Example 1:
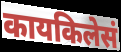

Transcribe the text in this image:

कायकिलेसं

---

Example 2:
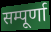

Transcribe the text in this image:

सम्पूर्णा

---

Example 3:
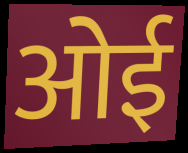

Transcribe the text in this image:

ओई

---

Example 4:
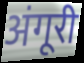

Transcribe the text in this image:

अंगूरी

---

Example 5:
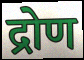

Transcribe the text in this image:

द्रोण